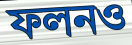
ফলনও